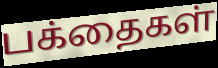
பக்தைகள்